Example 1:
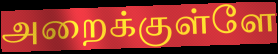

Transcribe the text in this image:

அறைக்குள்ளே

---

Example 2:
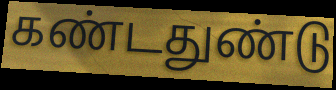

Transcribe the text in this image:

கண்டதுண்டு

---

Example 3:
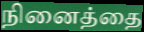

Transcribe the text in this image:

நினைத்தை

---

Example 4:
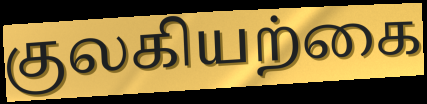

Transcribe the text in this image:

குலகியற்கை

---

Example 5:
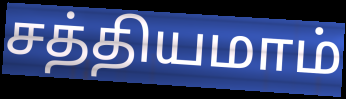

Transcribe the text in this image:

சத்தியமாம்